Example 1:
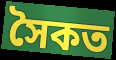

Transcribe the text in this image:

সৈকত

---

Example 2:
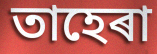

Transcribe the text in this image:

তাহেৰা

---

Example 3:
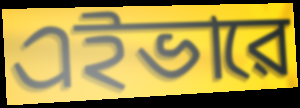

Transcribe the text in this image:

এইভাৱে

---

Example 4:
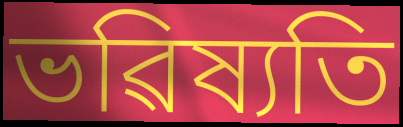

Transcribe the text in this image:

ভৱিষ্যতি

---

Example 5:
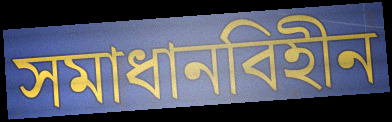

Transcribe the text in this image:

সমাধানবিহীন